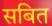
सबित